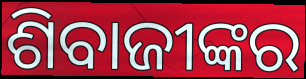
ଶିବାଜୀଙ୍କର